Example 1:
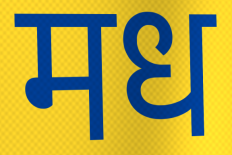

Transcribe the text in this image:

मध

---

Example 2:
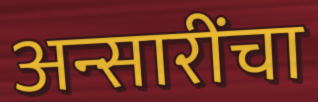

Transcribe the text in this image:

अन्सारींचा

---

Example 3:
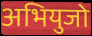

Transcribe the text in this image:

अभियुजो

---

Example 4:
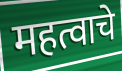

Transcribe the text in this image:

महत्वाचे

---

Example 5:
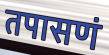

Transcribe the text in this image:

तपासणं